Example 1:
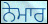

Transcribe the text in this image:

ਨੇਮਾਰ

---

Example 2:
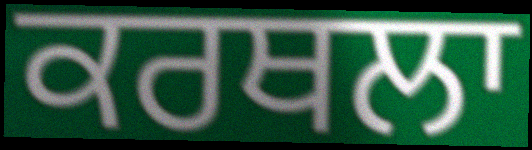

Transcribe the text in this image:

ਕਰਥਲਾ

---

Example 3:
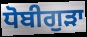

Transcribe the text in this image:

ਧੋਬੀਗੁੜਾ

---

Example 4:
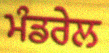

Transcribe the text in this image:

ਮੰਡਰੇਲ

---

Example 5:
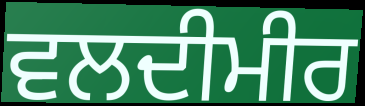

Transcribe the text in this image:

ਵਲਦੀਮੀਰ